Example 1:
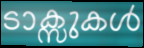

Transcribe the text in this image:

ടാക്സുകൾ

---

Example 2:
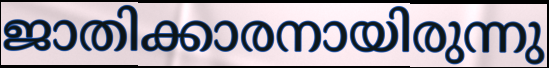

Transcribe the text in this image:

ജാതിക്കാരനായിരുന്നു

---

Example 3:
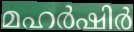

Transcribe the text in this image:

മഹർഷിർ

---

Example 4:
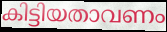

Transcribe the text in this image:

കിട്ടിയതാവണം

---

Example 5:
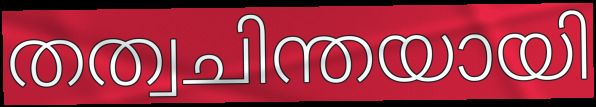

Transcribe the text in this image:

തത്വചിന്തയായി